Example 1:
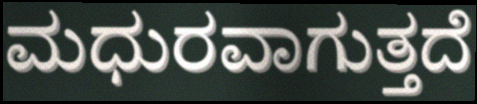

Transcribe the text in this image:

ಮಧುರವಾಗುತ್ತದೆ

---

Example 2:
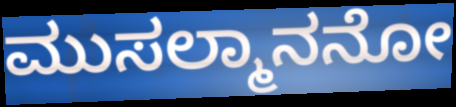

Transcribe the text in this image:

ಮುಸಲ್ಮಾನನೋ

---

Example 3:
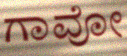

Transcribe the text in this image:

ಗಾವೋ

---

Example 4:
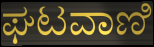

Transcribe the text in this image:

ಘಟವಾಣಿ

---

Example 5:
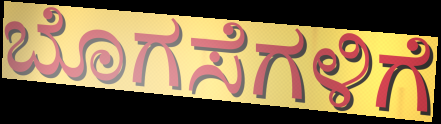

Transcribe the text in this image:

ಬೊಗಸೆಗಳಿಗೆ